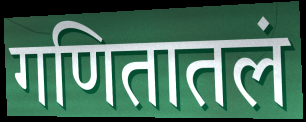
गणितातलं